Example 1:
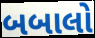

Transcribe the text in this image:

બબાલો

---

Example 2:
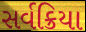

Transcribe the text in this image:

સર્વક્રિયા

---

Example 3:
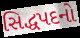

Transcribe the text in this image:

સિદ્ધપદનો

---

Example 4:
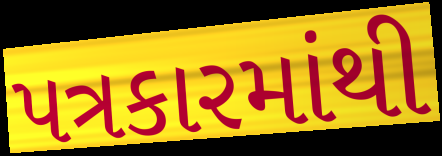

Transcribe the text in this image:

પત્રકારમાંથી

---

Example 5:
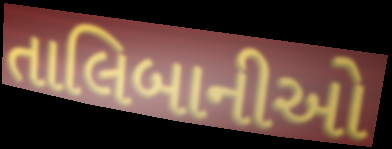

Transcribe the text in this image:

તાલિબાનીઓ